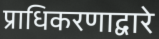
प्राधिकरणाद्वारे